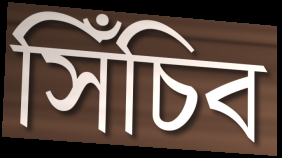
সিঁচিব